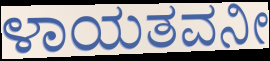
ಳಾಯತವನೀ